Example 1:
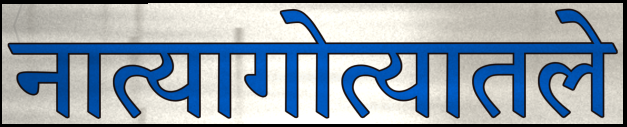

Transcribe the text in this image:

नात्यागोत्यातले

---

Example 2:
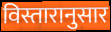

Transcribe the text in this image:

विस्तारानुसार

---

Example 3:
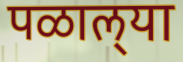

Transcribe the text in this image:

पळाल्या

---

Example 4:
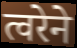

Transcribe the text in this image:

त्वरेने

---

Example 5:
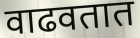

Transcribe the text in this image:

वाढवतात